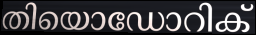
തിയൊഡോറിക്